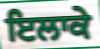
ਇਲਾਕੇ